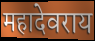
महादेवराय